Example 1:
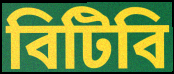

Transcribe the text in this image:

বিটিবি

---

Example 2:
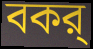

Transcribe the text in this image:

বকর্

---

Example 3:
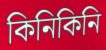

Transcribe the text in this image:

কিনিকিনি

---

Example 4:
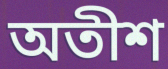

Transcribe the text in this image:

অতীশ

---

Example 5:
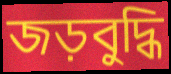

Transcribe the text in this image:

জড়বুদ্ধি